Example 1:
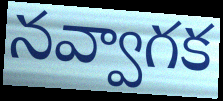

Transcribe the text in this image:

నవ్వాగక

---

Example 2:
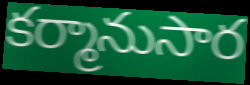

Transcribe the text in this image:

కర్మానుసార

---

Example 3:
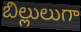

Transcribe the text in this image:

బిల్లులుగా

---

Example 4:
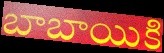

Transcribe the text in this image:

బాబాయికి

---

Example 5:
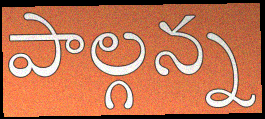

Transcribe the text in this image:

పాల్గన్న